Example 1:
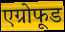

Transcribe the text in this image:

एग्रोफूड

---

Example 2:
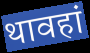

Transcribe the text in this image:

थावहां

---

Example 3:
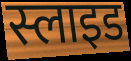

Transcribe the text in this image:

स्‍लाइड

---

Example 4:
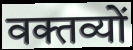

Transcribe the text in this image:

वक्तव्यों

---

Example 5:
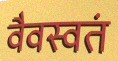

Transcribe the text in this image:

वैवस्वतं